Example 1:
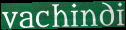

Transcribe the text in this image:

vachindi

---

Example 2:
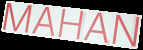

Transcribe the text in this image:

MAHAN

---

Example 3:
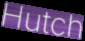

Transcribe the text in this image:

Hutch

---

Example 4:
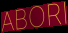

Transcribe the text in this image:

ABORI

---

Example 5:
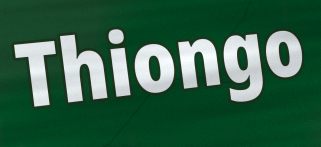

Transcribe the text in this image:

Thiongo